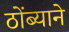
ठोंब्याने